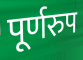
पूर्णरुप